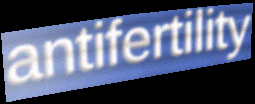
antifertility